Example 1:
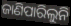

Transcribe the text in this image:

ଜାଣିପାରିଲୁନି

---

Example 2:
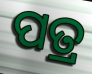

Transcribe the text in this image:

ପତ୍ର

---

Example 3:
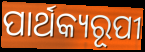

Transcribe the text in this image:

ପାର୍ଥକ୍ୟରୂପୀ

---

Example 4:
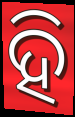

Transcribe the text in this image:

ହି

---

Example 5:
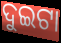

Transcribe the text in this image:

ଦୁଇଟା